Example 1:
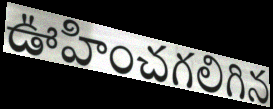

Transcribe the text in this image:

ఊహించగలిగిన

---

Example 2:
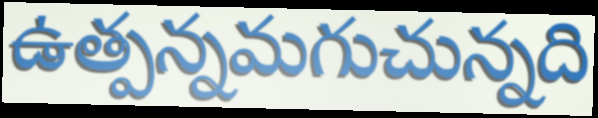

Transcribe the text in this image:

ఉత్పన్నమగుచున్నది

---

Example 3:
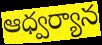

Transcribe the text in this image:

ఆధ్వర్యాన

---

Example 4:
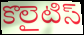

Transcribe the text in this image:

కొలైటిస్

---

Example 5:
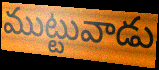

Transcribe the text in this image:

ముట్టువాడు